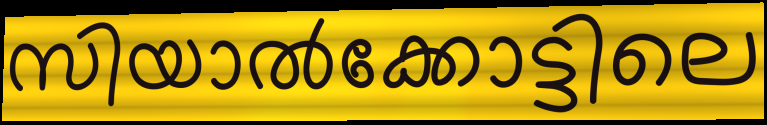
സിയാൽക്കോട്ടിലെ